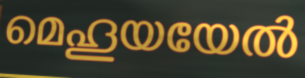
മെഹൂയയേൽ